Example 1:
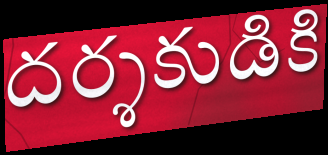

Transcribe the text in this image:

దర్శకుడికి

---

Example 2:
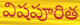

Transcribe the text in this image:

విషపూరిత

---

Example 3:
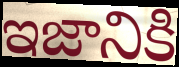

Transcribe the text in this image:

ఇజానికి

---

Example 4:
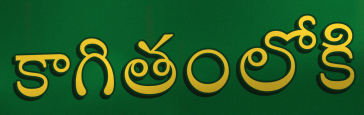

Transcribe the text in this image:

కాగితంలోకి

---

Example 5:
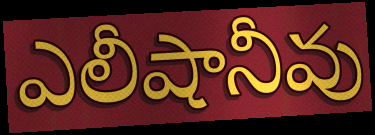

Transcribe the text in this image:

ఎలీషానీవు